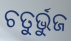
ଚତୁର୍ଭୁଜ